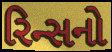
રિન્સનો